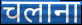
चलाना